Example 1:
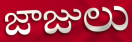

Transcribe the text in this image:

జాజులు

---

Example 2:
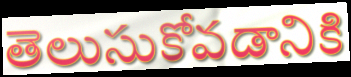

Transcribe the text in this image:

తెలుసుకోవడానికి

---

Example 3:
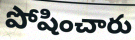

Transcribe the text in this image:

పోషించారు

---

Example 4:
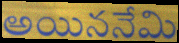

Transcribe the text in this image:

అయిననేమి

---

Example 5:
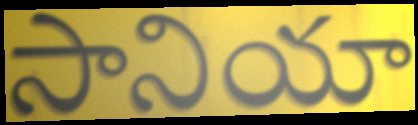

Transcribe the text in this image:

సానియా